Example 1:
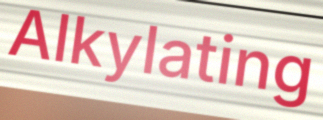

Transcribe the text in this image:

Alkylating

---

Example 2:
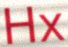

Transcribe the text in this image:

Hx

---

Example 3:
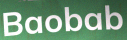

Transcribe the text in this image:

Baobab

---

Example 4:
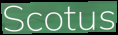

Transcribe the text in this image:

Scotus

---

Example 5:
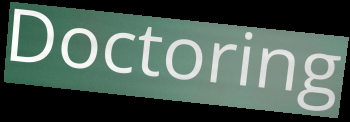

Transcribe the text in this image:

Doctoring